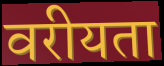
वरीयता